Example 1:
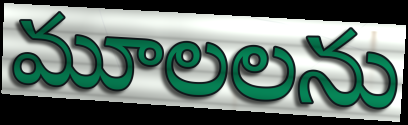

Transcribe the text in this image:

మూలలను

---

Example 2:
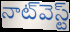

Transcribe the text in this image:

నాట్‌వెస్ట్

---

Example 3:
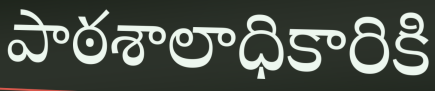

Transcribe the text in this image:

పాఠశాలాధికారికి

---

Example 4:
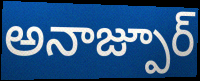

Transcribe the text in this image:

అనాజ్పూర్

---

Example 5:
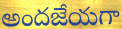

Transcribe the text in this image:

అందజేయగా